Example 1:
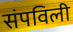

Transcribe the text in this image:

संपविली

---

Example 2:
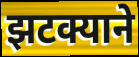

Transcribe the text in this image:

झटक्याने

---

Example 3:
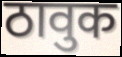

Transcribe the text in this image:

ठावुक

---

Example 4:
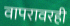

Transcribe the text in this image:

वापरावरही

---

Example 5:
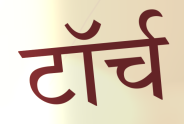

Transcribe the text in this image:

टॉर्च